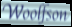
Woolfson